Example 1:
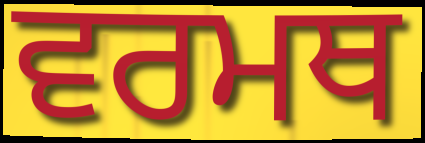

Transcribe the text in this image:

ਵਰਮਥ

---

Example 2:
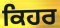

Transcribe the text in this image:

ਕਿਹਰ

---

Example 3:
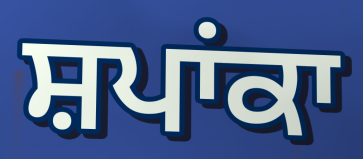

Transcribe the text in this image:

ਸ਼ਪਾਂਕਾ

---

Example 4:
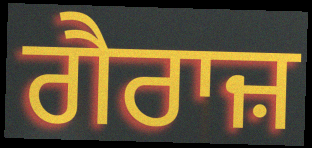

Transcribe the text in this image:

ਗੈਰਾਜ਼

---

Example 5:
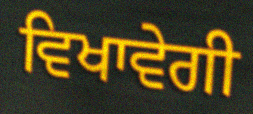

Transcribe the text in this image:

ਵਿਖਾਵੇਗੀ